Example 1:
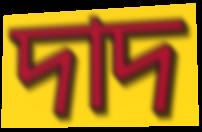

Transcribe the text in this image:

দাদ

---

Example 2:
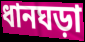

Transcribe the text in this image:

ধানঘড়া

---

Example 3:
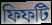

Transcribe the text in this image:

ফিফটি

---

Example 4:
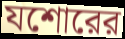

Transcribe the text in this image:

যশোরের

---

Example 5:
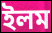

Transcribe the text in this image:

ইলম